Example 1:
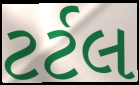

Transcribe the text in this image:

ટર્ટલ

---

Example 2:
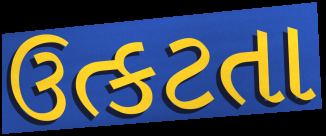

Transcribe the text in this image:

ઉત્કટતા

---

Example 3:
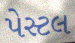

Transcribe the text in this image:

પેસ્ટલ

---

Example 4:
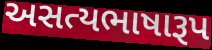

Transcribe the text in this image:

અસત્યભાષારૂપ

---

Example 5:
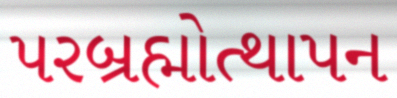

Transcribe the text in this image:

પરબ્રહ્મોત્થાપન